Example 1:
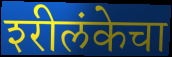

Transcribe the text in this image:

श्रीलंकेचा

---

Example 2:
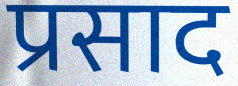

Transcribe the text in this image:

प्रसाद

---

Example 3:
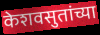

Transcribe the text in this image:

केशवसुतांच्या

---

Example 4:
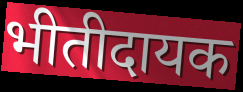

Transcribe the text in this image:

भीतीदायक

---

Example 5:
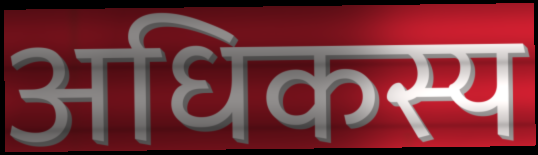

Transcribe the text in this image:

अधिकस्य